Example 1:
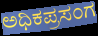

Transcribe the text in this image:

ಅಧಿಕಪ್ರಸಂಗ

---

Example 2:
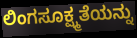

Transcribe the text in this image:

ಲಿಂಗಸೂಕ್ಷ್ಮತೆಯನ್ನು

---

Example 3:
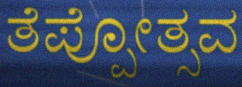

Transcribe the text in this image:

ತೆಪ್ಪೋತ್ಸವ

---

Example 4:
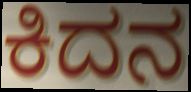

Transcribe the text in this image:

ಕಿದನ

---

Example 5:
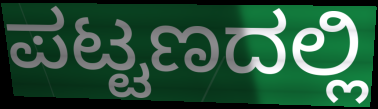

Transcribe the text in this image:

ಪಟ್ಟಣದಲ್ಲಿ